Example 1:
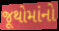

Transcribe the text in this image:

જૂથોમાંનો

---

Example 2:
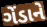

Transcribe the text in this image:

ગેંડાને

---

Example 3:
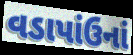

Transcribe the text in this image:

વડાપાંઉનાં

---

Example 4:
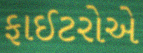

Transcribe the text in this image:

ફાઈટરોએ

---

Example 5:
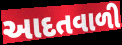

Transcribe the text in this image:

આદતવાળી